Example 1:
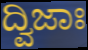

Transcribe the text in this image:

ದ್ವಿಜಾಃ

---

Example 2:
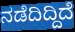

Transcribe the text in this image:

ನಡೆದಿದ್ದಿದೆ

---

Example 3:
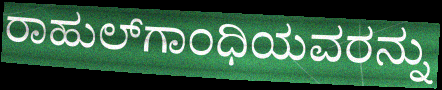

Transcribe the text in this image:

ರಾಹುಲ್‌ಗಾಂಧಿಯವರನ್ನು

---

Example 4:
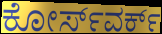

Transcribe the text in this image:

ಕೋರ್ಸ್‌ವರ್ಕ್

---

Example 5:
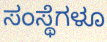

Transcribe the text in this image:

ಸಂಸ್ಥೆಗಳೂ